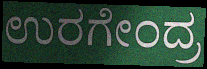
ಉರಗೇಂದ್ರ